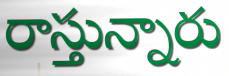
రాస్తున్నారు